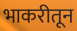
भाकरीतून